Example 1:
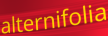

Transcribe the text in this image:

alternifolia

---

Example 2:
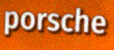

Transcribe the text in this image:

porsche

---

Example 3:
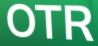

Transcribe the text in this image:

OTR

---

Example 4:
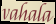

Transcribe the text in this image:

vahala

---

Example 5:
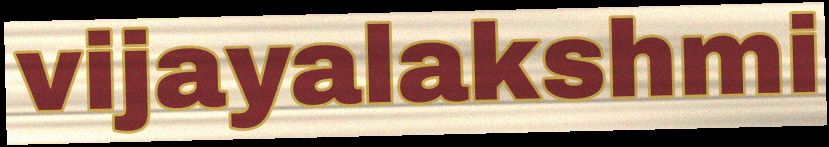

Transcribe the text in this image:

vijayalakshmi